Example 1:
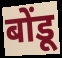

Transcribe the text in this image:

बोंडू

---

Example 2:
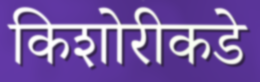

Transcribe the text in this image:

किशोरीकडे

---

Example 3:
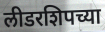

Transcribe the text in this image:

लीडरशिपच्या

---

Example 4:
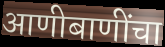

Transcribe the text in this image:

आणीबाणींचा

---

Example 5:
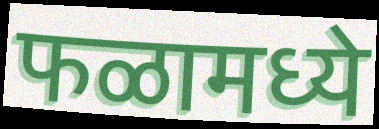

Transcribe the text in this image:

फळामध्ये